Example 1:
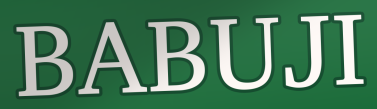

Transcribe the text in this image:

BABUJI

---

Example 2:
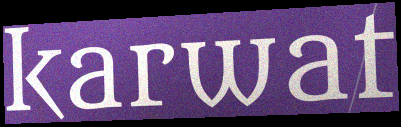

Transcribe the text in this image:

karwat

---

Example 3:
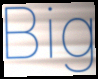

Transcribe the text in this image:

Big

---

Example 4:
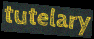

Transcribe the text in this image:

tutelary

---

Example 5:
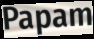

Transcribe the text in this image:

Papam